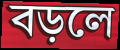
বড়লে